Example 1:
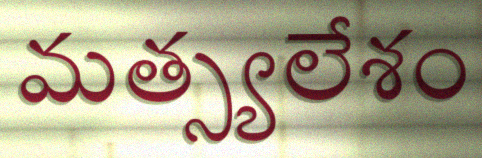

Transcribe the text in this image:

మత్స్యలేశం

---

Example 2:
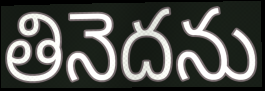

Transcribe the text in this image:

తినెదను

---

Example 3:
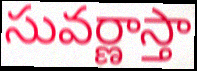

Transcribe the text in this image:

సువర్ణాస్తా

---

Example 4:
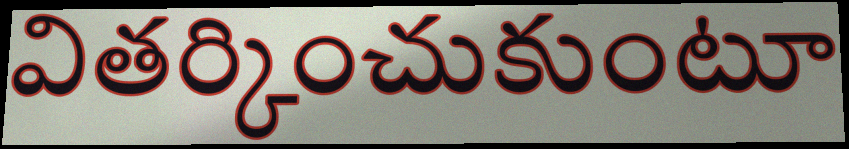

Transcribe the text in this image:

వితర్కించుకుంటూ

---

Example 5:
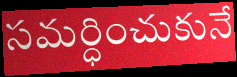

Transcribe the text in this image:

సమర్ధించుకునే